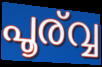
പൂര്വ്വ